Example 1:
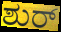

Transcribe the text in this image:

ಶುರ್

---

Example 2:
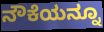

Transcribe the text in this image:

ನೌಕೆಯನ್ನೂ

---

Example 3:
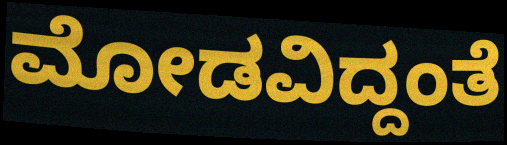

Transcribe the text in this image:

ಮೋಡವಿದ್ದಂತೆ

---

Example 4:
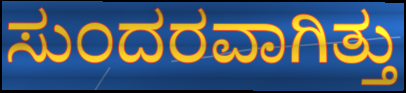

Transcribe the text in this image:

ಸುಂದರವಾಗಿತ್ತು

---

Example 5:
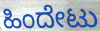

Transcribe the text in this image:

ಹಿಂದೇಟು